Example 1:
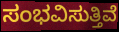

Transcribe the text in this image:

ಸಂಭವಿಸುತ್ತಿವೆ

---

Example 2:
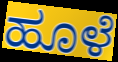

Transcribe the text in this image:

ಹೂಳೆ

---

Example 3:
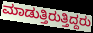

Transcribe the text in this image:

ಮಾಡುತ್ತಿರುತ್ತಿದ್ದರು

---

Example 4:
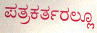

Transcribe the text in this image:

ಪತ್ರಕರ್ತರಲ್ಲೂ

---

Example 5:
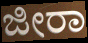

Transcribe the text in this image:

ಜೀರಾ